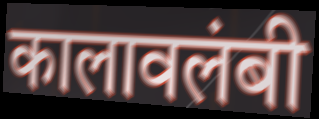
कालावलंबी